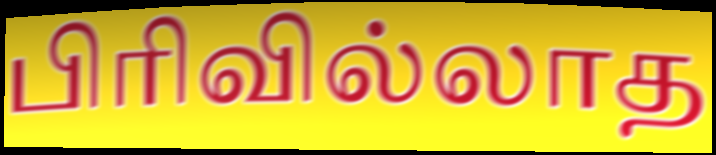
பிரிவில்லாத